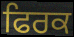
ਫਿਰਕ